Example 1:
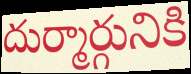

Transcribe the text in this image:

దుర్మార్గునికి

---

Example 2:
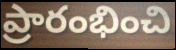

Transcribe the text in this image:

ప్రారంభించి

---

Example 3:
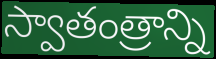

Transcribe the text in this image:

స్వాతంత్రాన్ని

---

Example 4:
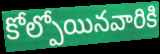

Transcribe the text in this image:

కోల్పోయినవారికి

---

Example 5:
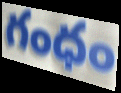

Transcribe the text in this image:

గంధం